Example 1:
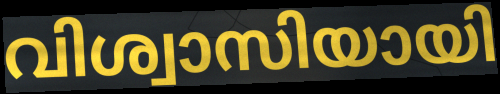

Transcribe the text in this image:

വിശ്വാസിയായി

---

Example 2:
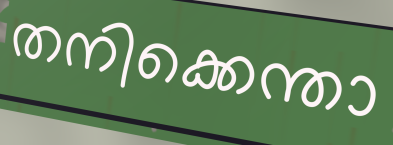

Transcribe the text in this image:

തനിക്കെന്താ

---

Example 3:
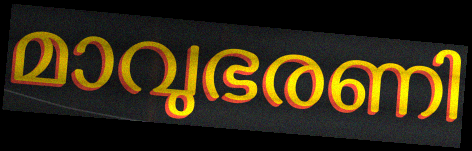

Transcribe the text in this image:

മാവുഭരണി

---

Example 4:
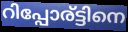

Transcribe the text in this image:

റിപ്പോര്ട്ടിനെ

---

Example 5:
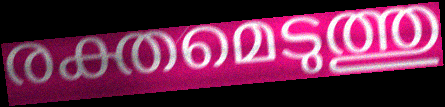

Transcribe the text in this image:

രക്തമെടുത്തു